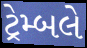
ટ્રેમ્બલે